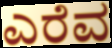
ಎರೆವ